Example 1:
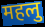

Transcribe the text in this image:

महलु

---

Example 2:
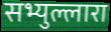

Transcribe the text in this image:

सभ्युल्लारा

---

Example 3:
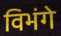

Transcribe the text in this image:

विभंगे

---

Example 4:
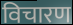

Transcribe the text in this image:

विचारण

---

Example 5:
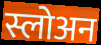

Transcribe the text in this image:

स्लोअन